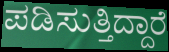
ಪಡಿಸುತ್ತಿದ್ದಾರೆ